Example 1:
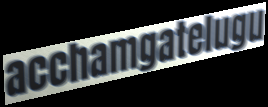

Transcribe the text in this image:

acchamgatelugu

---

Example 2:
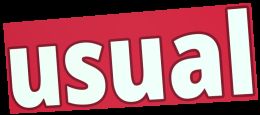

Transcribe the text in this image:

usual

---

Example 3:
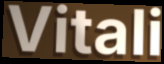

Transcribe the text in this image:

Vitali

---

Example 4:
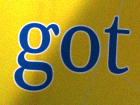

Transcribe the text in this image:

got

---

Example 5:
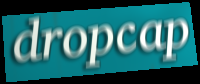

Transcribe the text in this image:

dropcap